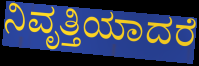
ನಿವೃತ್ತಿಯಾದರೆ